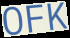
OFK